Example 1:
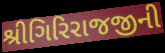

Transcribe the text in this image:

શ્રીગિરિરાજજીની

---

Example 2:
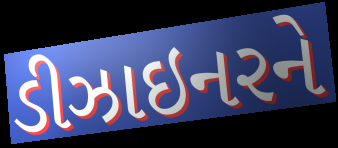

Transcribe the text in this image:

ડીઝાઇનરને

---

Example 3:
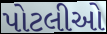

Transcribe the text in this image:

પોટલીઓ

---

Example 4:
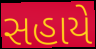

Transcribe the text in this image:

સહાયે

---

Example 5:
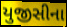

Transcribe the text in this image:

યુજીસીના